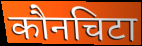
कौनचिटा